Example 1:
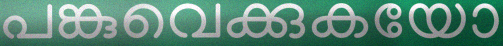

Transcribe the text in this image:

പങ്കുവെക്കുകയോ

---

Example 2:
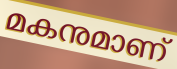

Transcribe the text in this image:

മകനുമാണ്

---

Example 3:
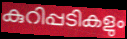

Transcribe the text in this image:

കുറിപ്പടികളും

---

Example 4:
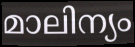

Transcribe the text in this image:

മാലിന്യം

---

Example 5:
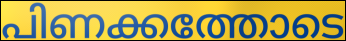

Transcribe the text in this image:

പിണക്കത്തോടെ